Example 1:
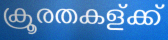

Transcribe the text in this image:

ക്രൂരതകള്ക്ക്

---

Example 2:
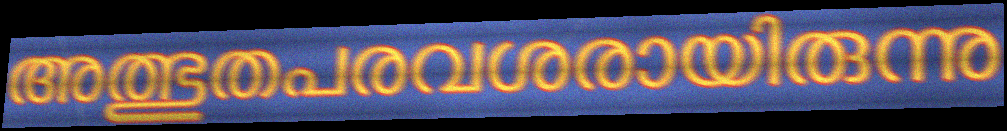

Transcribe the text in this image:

അത്ഭുതപരവശരായിരുന്നു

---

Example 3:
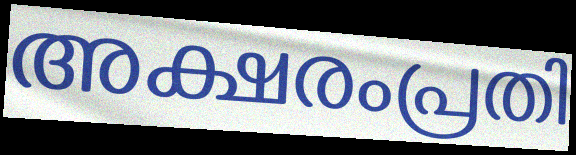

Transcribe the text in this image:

അക്ഷരംപ്രതി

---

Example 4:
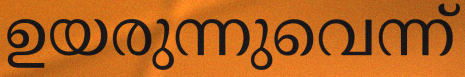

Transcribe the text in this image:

ഉയരുന്നുവെന്ന്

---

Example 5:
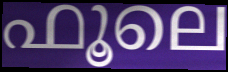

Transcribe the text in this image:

ഫൂലെ